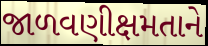
જાળવણીક્ષમતાને